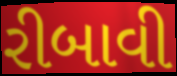
રીબાવી